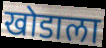
खोडाला